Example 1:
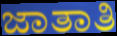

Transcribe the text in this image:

ಜಾತಾತಿ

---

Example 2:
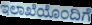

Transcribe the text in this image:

ಇಲಾಖೆಯೊಂದಿಗೆ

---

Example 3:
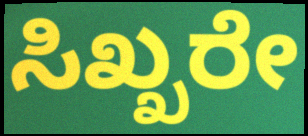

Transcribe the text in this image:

ಸಿಖ್ಖರೇ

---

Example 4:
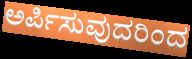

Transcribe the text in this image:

ಅರ್ಪಿಸುವುದರಿಂದ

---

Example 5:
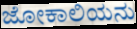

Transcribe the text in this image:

ಜೋಕಾಲಿಯನು